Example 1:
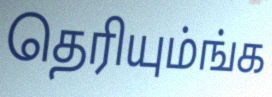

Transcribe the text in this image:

தெரியும்ங்க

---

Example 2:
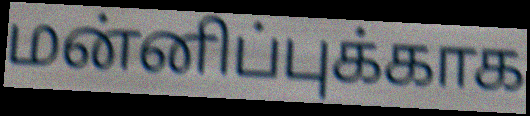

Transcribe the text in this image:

மன்னிப்புக்காக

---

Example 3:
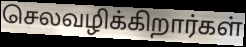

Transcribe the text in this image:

செலவழிக்கிறார்கள்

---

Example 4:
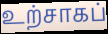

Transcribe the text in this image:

உற்சாகப்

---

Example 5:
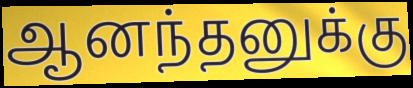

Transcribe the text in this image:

ஆனந்தனுக்கு